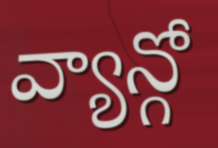
వ్యాన్గో